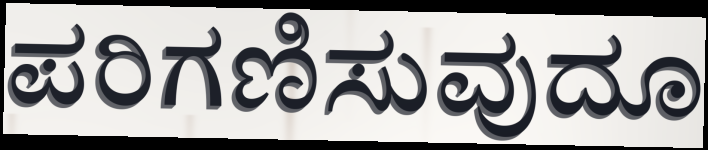
ಪರಿಗಣಿಸುವುದೂ